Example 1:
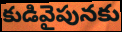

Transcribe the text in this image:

కుడివైపునకు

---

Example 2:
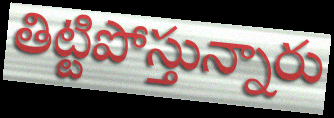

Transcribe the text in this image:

తిట్టిపోస్తున్నారు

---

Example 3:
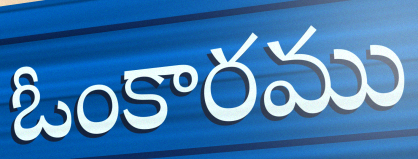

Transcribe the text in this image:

ఓంకారము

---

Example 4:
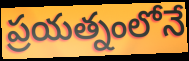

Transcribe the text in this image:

ప్రయత్నంలోనే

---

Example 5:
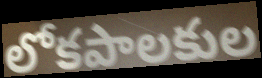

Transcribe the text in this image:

లోకపాలకుల